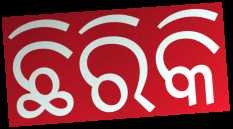
ଛିରିକି